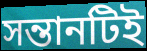
সন্তানটিই